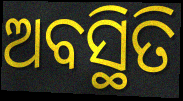
ଅବସ୍ଥିତି